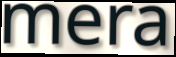
mera